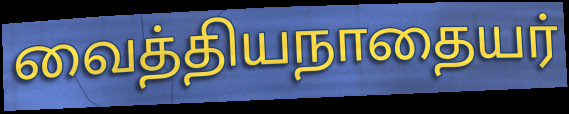
வைத்தியநாதையர்